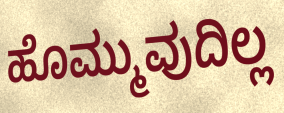
ಹೊಮ್ಮುವುದಿಲ್ಲ